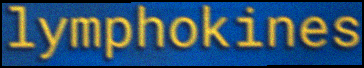
lymphokines